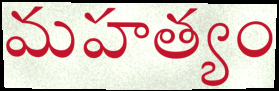
మహత్యం